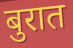
बुरात